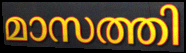
മാസത്തി